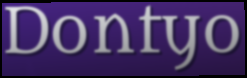
Dontyo